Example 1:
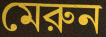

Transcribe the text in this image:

মেরুন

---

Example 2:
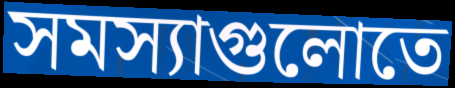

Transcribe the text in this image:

সমস্যাগুলোতে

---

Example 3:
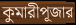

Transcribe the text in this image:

কুমারীপূজার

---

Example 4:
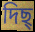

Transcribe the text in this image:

দিছ্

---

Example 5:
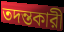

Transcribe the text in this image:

তদন্তকারী